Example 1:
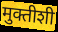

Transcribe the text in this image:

मुक्तीशी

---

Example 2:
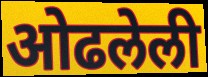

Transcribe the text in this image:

ओढलेली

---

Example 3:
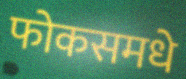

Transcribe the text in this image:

फोकसमधे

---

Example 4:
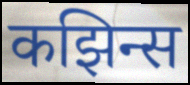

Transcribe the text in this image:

कझिन्स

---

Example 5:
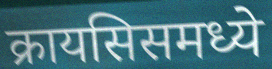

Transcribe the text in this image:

क्रायसिसमध्ये